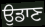
ਉਡਾਣ